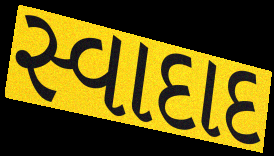
સ્વાદાદ